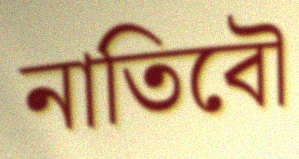
নাতিবৌ